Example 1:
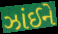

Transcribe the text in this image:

ઝાંઈને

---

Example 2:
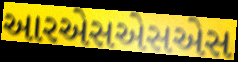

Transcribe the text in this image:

આરએસએસએસ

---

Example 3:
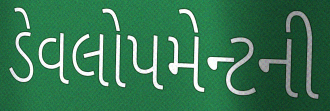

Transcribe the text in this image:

ડેવલોપમેન્ટની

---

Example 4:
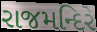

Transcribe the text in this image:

રાજમન્દિરે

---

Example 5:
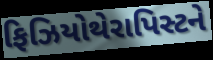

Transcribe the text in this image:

ફિઝિયોથેરાપિસ્ટને